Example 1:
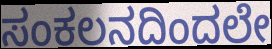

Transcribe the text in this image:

ಸಂಕಲನದಿಂದಲೇ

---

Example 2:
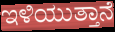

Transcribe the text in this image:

ಇಳಿಯುತ್ತಾನೆ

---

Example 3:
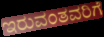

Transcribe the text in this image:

ಇರುವಂತವರಿಗೆ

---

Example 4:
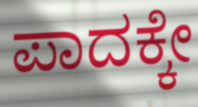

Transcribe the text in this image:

ಪಾದಕ್ಕೇ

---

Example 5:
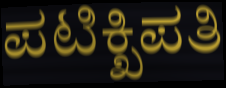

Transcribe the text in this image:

ಪಟಿಕ್ಖಿಪತಿ